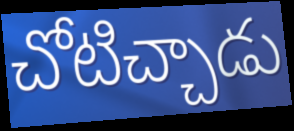
చోటిచ్చాడు